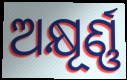
ଅକ୍ଷୂର୍ଣ୍ଣ